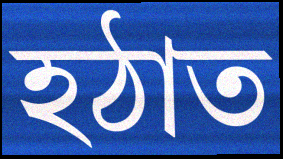
হঠাত